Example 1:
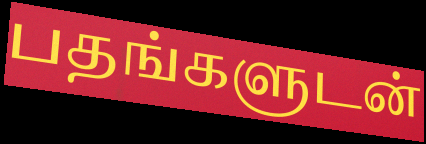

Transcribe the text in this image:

பதங்களுடன்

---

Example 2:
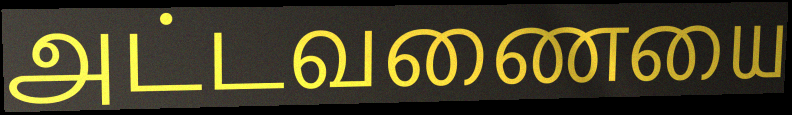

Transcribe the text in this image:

அட்டவணையை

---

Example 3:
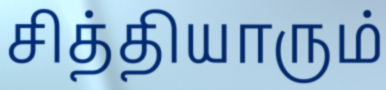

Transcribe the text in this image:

சித்தியாரும்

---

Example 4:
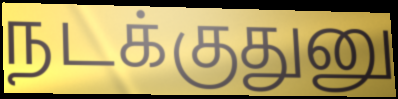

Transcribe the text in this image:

நடக்குதுனு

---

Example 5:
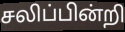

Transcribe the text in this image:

சலிப்பின்றி